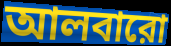
আলবারো